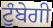
ਟੁੰਬੇਗੀ